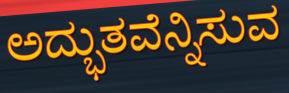
ಅದ್ಭುತವೆನ್ನಿಸುವ